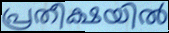
പ്രതീക്ഷയിൽ